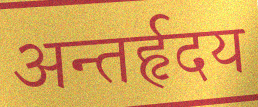
अन्तर्हृदय